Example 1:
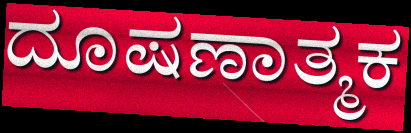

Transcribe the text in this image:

ದೂಷಣಾತ್ಮಕ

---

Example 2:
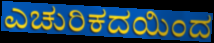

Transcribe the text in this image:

ಎಚುರಿಕದಯಿಂದ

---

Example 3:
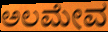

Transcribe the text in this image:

ಅಲಮೇವ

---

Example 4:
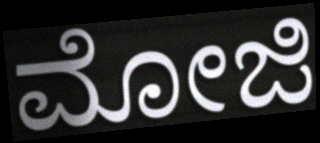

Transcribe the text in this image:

ಮೋಜಿ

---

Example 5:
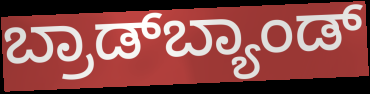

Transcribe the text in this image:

ಬ್ರಾಡ್‌ಬ್ಯಾಂಡ್